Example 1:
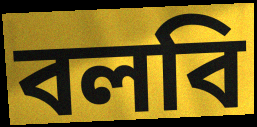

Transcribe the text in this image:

বলবি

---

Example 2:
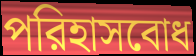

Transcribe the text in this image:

পরিহাসবোধ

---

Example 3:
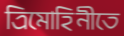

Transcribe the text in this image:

ত্রিমোহিনীতে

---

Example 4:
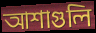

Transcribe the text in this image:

আশাগুলি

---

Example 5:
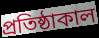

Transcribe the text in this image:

প্রতিষ্ঠাকাল